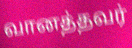
வானத்தவர்